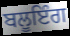
ਬਲੂਇੰਗ